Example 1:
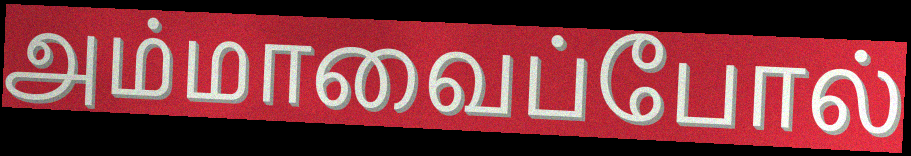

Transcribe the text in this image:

அம்மாவைப்போல்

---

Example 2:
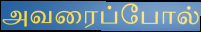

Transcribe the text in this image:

அவரைப்போல்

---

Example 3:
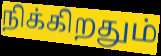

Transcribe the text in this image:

நிக்கிறதும்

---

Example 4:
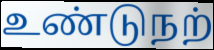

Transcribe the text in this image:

உண்டுநற்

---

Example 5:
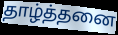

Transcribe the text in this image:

தாழ்த்தனை